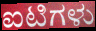
ಐಟಿಗಳು